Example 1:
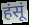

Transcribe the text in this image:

हंसूं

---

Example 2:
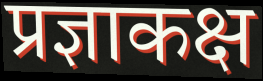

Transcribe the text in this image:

प्रज्ञाकक्ष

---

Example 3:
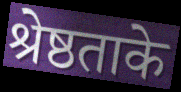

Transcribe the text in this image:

श्रेष्ठताके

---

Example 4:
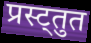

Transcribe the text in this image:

प्रस्ट्तुत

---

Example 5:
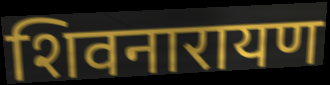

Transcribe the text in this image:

शिवनारायण